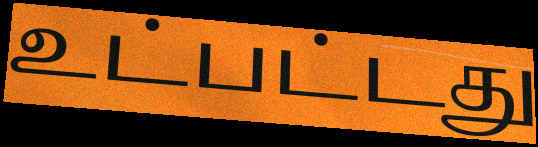
உட்பட்டது